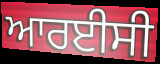
ਆਰਈਸੀ